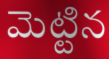
మెట్టిన